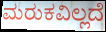
ಮರುಕವಿಲ್ಲದೆ